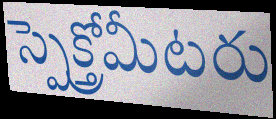
స్పెక్త్రోమీటరు